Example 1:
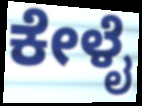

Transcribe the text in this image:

ಕೇಳೈ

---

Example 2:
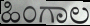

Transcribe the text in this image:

ಹಿಂಗಾಲ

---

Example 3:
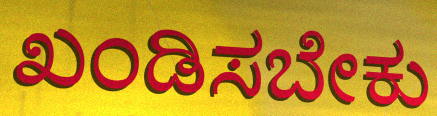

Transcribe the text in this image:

ಖಂಡಿಸಬೇಕು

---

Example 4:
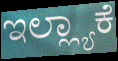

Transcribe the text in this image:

ಇಲ್ಲ್ಯಾಕೆ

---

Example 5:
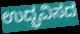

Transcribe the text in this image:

ಉದ್ಭವಿಸದ